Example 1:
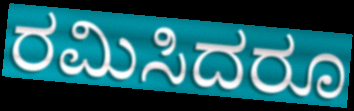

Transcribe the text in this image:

ರಮಿಸಿದರೂ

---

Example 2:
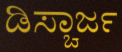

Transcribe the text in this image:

ಡಿಸ್ಚಾರ್ಜ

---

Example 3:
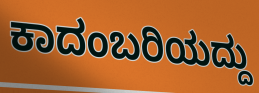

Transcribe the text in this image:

ಕಾದಂಬರಿಯದ್ದು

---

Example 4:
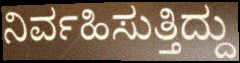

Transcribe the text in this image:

ನಿರ್ವಹಿಸುತ್ತಿದ್ದು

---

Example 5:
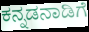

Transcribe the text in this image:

ಕನ್ನಡನಾಡಿಗೆ